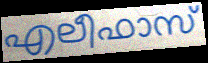
എലീഫാസ്